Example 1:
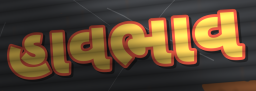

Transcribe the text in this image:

હાવભાવ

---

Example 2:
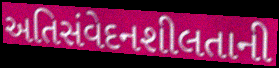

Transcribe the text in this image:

અતિસંવેદનશીલતાની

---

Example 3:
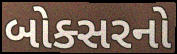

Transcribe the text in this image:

બોક્સરનો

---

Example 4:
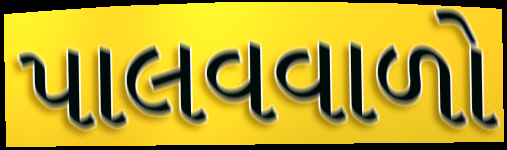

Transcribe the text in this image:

પાલવવાળો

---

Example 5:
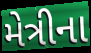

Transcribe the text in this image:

મેત્રીના